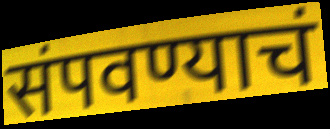
संपवण्याचं